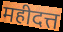
महीदत्त